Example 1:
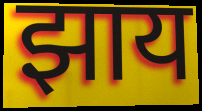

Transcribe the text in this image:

झाय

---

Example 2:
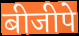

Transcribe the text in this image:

बीजीपे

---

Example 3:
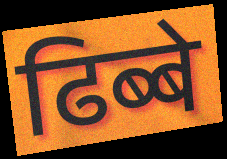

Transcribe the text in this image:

ढिब्बे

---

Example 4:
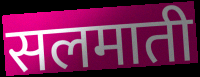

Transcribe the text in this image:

सलमाती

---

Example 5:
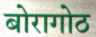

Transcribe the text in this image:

बोरागोठ